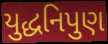
યુદ્ધનિપુણ